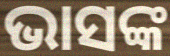
ଭାସଙ୍କ